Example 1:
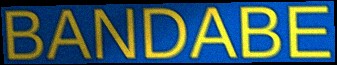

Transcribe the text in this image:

BANDABE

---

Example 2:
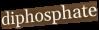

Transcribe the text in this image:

diphosphate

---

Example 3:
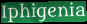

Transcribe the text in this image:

Iphigenia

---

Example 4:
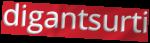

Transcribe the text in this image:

digantsurti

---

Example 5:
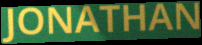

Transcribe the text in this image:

JONATHAN